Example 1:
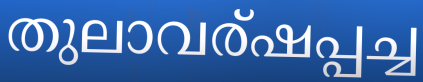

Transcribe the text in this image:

തുലാവര്ഷപ്പച്ച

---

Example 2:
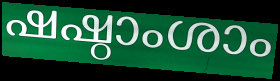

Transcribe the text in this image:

ഷഷ്ഠാംശാം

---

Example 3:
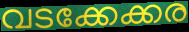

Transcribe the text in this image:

വടക്കേക്കര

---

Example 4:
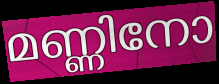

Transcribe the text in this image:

മണ്ണിനോ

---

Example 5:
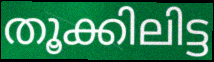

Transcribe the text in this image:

തൂക്കിലിട്ട